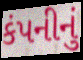
કંપનીનું